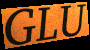
GLU